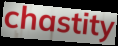
chastity